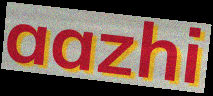
aazhi